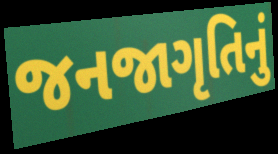
જનજાગૃતિનું